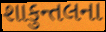
શાકુન્તલના